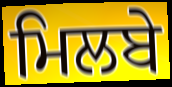
ਮਿਲਬੇ